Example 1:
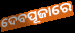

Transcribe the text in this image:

ଦେବପୂଜାରେ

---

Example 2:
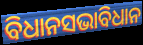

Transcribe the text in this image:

ବିଧାନସଭାବିଧାନ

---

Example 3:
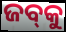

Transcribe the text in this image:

ଜବ୍‍କୁ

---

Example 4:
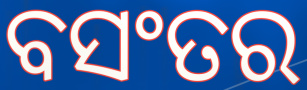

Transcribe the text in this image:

ବସଂତର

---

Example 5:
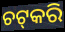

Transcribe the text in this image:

ଚଟ୍‌କରି